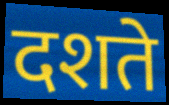
दशते